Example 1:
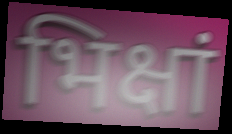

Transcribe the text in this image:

भिक्षां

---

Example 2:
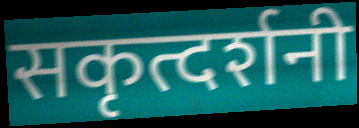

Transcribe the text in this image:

सकृत्दर्शनी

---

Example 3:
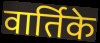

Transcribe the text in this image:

वार्तिके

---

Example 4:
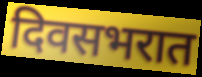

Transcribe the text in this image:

दिवसभरात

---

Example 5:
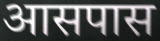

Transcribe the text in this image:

आसपास